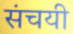
संचयी